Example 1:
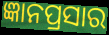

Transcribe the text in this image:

ଜ୍ଞାନପ୍ରସାର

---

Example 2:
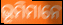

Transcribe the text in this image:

ଭୂମିମାନେ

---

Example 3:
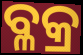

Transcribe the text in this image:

ବ୍ଳକ୍ର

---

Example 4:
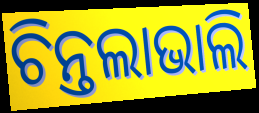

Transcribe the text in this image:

ଚିନ୍ତଲାଭାଲି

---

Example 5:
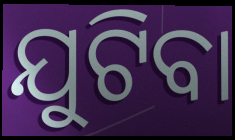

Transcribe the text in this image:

ଯୁଟିବା